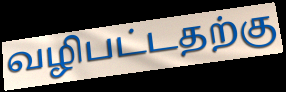
வழிபட்டதற்கு